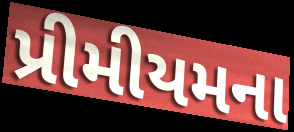
પ્રીમીયમના